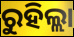
ରୁହିଲ୍ଲା